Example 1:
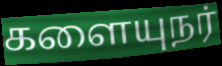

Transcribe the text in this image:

களையுநர்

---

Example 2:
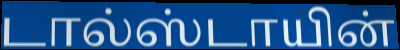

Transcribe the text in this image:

டால்ஸ்டாயின்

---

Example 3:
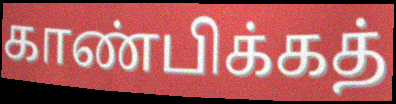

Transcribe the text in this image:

காண்பிக்கத்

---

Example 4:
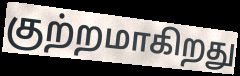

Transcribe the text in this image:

குற்றமாகிறது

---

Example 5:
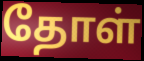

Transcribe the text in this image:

தோள்